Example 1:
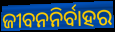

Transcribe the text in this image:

ଜୀବନନିର୍ବାହର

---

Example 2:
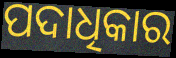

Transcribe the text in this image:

ପଦାଧିକାର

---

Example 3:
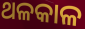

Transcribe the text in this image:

ଥଳକାଳ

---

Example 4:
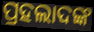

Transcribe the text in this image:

ପ୍ରହଲାଦଙ୍କ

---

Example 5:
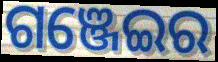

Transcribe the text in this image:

ଗଞ୍ଜେଇର